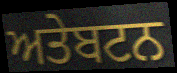
ਅਤੇਬਟਨ